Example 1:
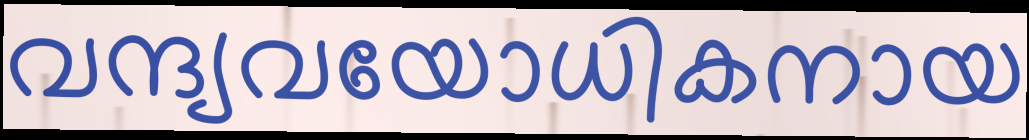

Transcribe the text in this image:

വന്ദ്യവയോധികനായ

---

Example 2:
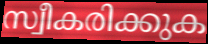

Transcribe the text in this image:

സ്വീകരിക്കുക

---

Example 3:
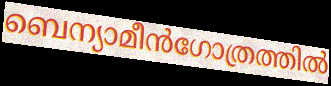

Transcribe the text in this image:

ബെന്യാമീൻഗോത്രത്തിൽ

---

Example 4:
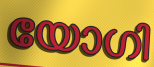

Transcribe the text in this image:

യോഗി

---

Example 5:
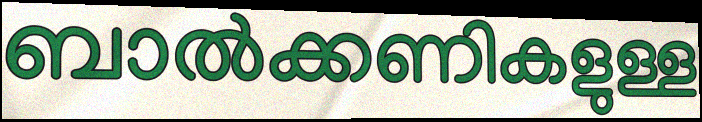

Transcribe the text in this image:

ബാൽക്കണികളുള്ള